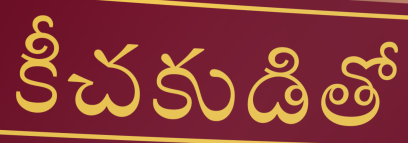
కీచకుడితో